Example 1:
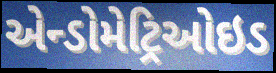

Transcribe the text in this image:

એન્ડોમેટ્રિઓઇડ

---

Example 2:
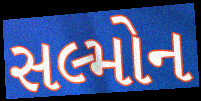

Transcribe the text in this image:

સલ્મોન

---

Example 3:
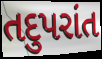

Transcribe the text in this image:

તદુપરાંત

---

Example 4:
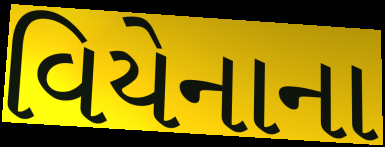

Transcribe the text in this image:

વિયેનાના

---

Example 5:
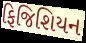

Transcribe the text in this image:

ફિજિશિયન